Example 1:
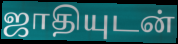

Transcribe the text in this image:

ஜாதியுடன்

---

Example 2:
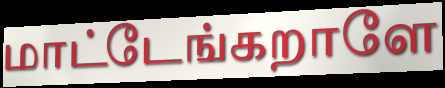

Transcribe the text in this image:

மாட்டேங்கறாளே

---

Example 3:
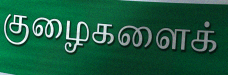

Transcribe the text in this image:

குழைகளைக்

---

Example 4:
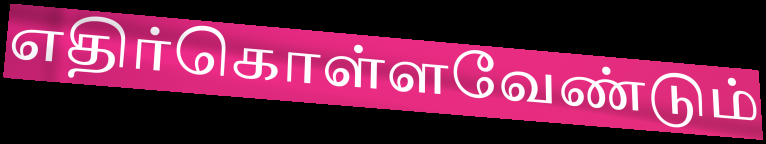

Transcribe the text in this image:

எதிர்கொள்ளவேண்டும்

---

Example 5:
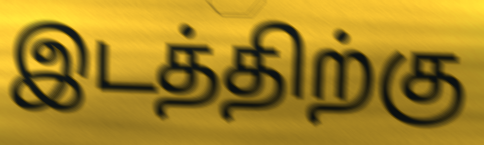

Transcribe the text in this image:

இடத்திற்கு